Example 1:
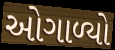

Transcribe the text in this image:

ઓગાળ્યો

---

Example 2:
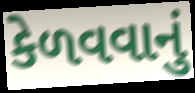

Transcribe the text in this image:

કેળવવાનું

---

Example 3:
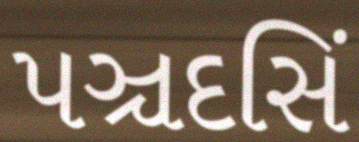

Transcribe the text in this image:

પઞ્ચદસિં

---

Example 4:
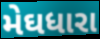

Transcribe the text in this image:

મેઘધારા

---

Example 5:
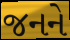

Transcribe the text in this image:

જનને